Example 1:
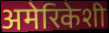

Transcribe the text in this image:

अमेरिकेशी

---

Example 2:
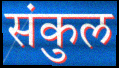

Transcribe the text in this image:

संकुल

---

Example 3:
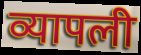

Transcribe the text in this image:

व्यापली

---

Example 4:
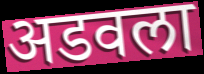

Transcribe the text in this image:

अडवला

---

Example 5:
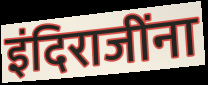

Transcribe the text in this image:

इंदिराजींना